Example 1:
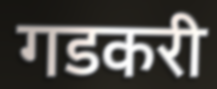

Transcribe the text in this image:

गडकरी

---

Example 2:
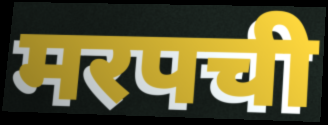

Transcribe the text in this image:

मरपची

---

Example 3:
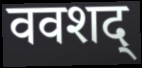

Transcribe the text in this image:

ववशद्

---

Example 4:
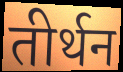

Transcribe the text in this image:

तीर्थन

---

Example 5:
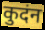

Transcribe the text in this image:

कुदंन